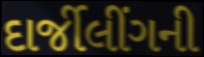
દાર્જીલીંગની